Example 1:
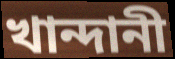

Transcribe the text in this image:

খান্দানী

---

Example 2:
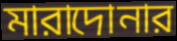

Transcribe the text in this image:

মারাদোনার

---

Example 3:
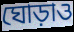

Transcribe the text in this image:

ঘোড়াও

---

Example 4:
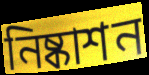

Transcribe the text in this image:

নিষ্কাশন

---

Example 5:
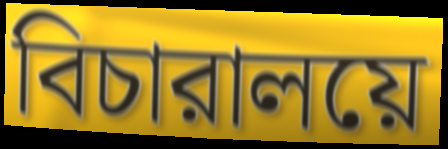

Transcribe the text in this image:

বিচারালয়ে